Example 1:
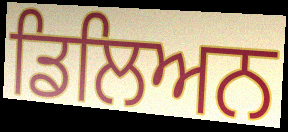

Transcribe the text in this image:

ਡਿਲਿਅਨ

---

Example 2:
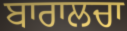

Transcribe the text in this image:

ਬਾਰਾਲਚਾ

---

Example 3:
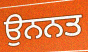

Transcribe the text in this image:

ਉਨਨਤ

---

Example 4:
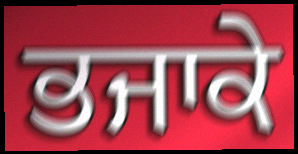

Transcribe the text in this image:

ਭਜਾਕੇ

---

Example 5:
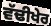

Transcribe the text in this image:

ਵੱਢੀਖੇਰ